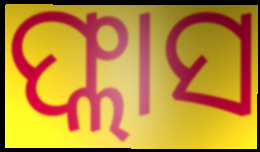
ଫ୍ଲାସ